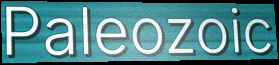
Paleozoic